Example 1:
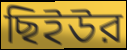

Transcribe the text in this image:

ছিইউর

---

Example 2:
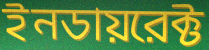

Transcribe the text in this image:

ইনডায়রেক্ট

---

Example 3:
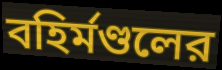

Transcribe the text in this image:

বহির্মণ্ডলের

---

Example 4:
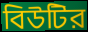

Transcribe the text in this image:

বিউটির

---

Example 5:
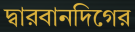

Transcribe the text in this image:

দ্বারবানদিগের